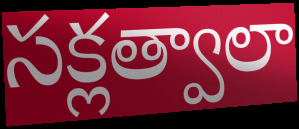
సక్లత్వాలా